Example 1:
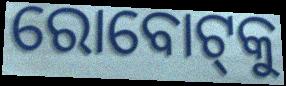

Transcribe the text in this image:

ରୋବୋଟ୍‌କୁ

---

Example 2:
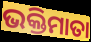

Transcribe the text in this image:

ଭକ୍ତିମାତା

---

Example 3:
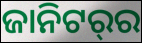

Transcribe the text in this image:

ଜାନିଟର୍‌ର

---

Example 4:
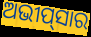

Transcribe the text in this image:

ଅଭୀପ୍‌ସାର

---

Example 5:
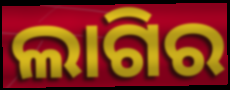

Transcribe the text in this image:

ଲାଗିର